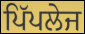
ਪਿੱਪਲੇਜ